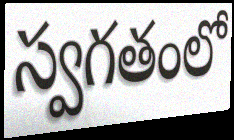
స్వగతంలో